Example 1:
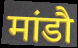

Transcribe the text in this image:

मांडौ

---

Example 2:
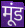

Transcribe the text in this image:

मूंड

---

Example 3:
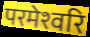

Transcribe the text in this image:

परमेश्वरि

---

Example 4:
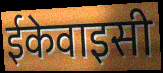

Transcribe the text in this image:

ईकेवाइसी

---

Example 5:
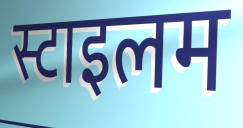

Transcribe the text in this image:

स्टाइलम